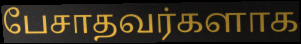
பேசாதவர்களாக